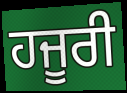
ਹਜੂਰੀ